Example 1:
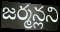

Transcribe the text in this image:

జర్మన్లని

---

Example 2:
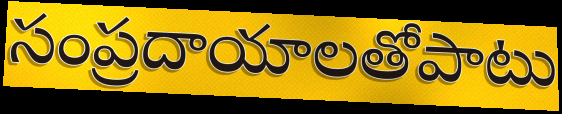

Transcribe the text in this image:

సంప్రదాయాలతోపాటు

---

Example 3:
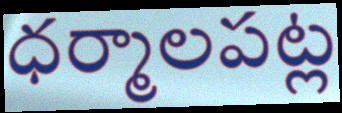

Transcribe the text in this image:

ధర్మాలపట్ల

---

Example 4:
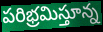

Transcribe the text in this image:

పరిభ్రమిస్తూన్న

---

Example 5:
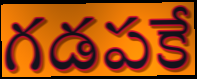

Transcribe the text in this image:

గడపకే